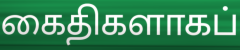
கைதிகளாகப்